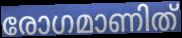
രോഗമാണിത്